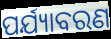
ପର୍ଯ୍ୟାବରଣ